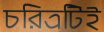
চরিত্রটিই